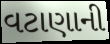
વટાણાની